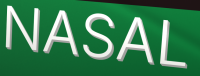
NASAL